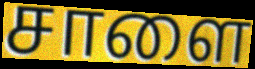
சாளை